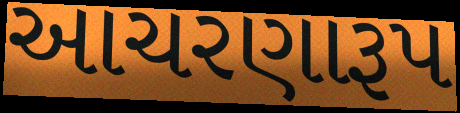
આચરણારૂપ